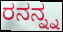
ರನನ್ನ್ನ